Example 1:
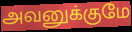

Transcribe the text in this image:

அவனுக்குமே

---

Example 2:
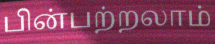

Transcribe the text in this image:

பின்பற்றலாம்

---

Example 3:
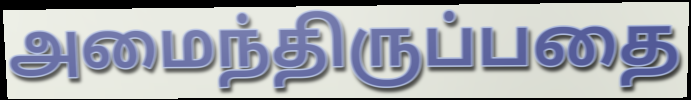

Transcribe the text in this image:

அமைந்திருப்பதை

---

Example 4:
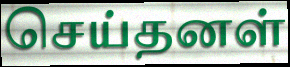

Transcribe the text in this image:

செய்தனள்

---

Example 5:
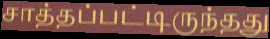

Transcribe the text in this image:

சாத்தப்பட்டிருந்தது